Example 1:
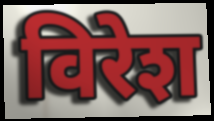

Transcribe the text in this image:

विरेश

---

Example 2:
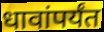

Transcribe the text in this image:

धावांपर्यंत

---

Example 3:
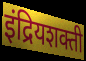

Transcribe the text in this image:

इंद्रियशक्ती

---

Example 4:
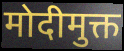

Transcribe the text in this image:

मोदीमुक्त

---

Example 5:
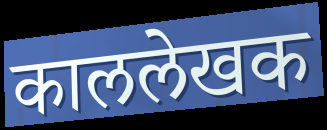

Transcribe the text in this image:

काललेखक